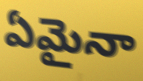
ఏమైనా